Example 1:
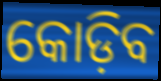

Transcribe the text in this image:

କୋଡ଼ିବ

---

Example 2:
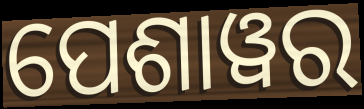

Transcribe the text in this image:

ପେଶାୱର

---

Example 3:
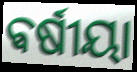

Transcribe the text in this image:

ଵର୍ଷୀୟା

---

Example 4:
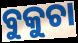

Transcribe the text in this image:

ବୁକୁଚା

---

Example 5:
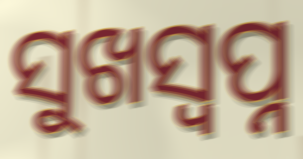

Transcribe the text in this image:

ସୁଖସ୍ୱପ୍ନ